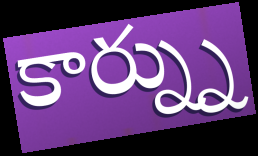
కార్న్ను